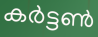
കർട്ടൺ